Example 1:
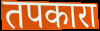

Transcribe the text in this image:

तपकारा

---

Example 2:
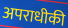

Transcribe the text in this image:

अपराधीकी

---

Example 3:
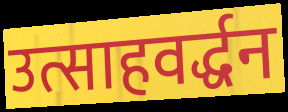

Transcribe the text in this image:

उत्साहवर्द्धन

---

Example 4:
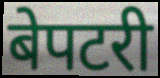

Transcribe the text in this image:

बेपटरी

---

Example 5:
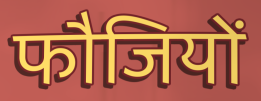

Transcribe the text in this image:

फौजियों